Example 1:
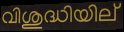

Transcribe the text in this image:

വിശുദ്ധിയില്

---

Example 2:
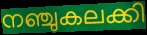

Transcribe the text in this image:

നഞ്ചുകലക്കി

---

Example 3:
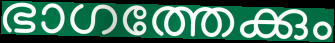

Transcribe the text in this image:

ഭാഗത്തേക്കും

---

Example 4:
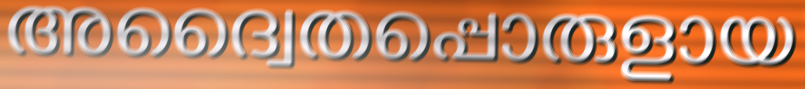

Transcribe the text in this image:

അദ്വൈതപ്പൊരുളായ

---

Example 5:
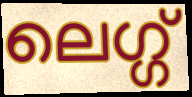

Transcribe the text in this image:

ലെഗ്ഗ്